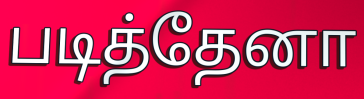
படித்தேனா